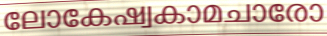
ലോകേഷ്വകാമചാരോ